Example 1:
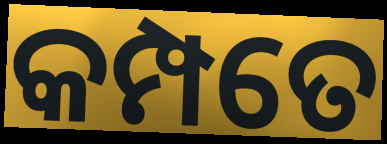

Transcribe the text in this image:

କମ୍ପତେ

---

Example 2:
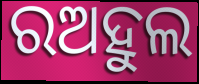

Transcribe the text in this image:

ରଅହୁଲ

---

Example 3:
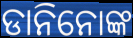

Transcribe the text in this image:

ଡାନିନୋଙ୍କ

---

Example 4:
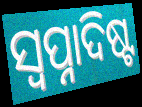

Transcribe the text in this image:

ସ୍ୱପ୍ନାଦିଷ୍ଟ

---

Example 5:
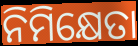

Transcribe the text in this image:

ନିମିକ୍ଷେତା